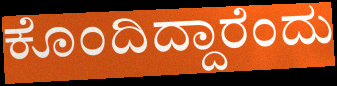
ಕೊಂದಿದ್ದಾರೆಂದು